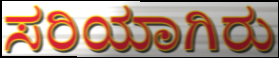
ಸರಿಯಾಗಿರು